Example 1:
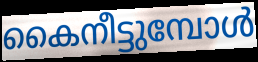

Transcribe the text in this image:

കൈനീട്ടുമ്പോൾ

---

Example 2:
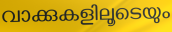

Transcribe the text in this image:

വാക്കുകളിലൂടെയും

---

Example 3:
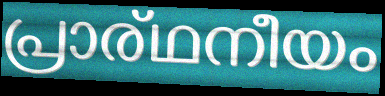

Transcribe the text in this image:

പ്രാര്ഥനീയം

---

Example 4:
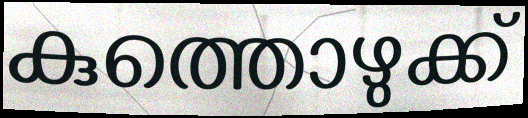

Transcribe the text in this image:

കുത്തൊഴുക്ക്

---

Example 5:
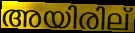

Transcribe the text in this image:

അയിരില്